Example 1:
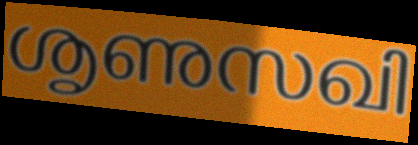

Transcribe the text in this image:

ശൃണുസഖി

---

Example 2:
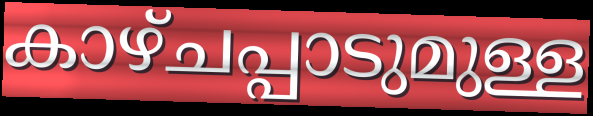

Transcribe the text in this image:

കാഴ്ചപ്പാടുമുള്ള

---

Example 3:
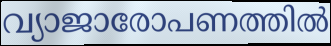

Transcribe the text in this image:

വ്യാജാരോപണത്തിൽ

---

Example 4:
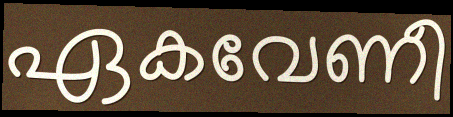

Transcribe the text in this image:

ഏകവേണീ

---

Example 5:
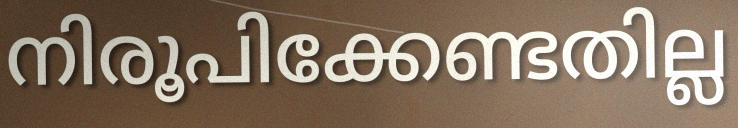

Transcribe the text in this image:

നിരൂപിക്കേണ്ടതില്ല